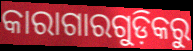
କାରାଗାରଗୁଡ଼ିକରୁ